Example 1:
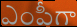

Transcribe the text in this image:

ఎంపీగా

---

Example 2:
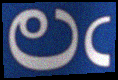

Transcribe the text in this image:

లఁ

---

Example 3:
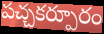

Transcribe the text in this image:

పచ్చకర్పూరం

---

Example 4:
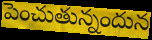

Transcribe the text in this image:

పెంచుతున్నందున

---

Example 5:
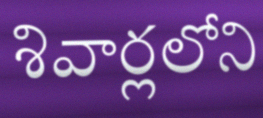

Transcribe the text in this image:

శివార్లలోని